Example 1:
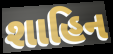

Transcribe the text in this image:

શાહિન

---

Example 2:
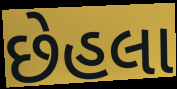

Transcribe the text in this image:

છેહલા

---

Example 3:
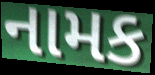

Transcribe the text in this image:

નામક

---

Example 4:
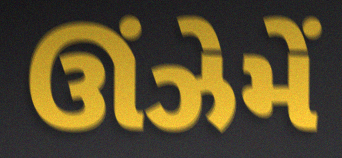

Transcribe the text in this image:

ઊંઝેમેં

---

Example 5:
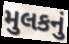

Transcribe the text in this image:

મુલકનું